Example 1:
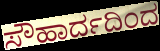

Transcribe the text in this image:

ಸೌಹಾರ್ದದಿಂದ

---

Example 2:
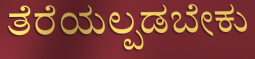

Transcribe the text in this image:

ತೆರೆಯಲ್ಪಡಬೇಕು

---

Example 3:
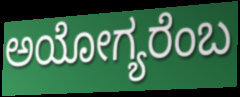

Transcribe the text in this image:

ಅಯೋಗ್ಯರೆಂಬ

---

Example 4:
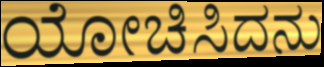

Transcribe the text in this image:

ಯೋಚಿಸಿದನು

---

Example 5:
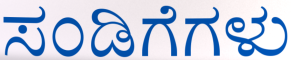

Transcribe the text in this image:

ಸಂಡಿಗೆಗಳು